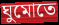
ঘুমোতে